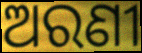
ଅରଣୀ